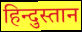
हिन्दुस्तान